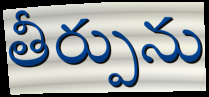
తీర్పును